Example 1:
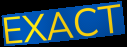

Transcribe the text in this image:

EXACT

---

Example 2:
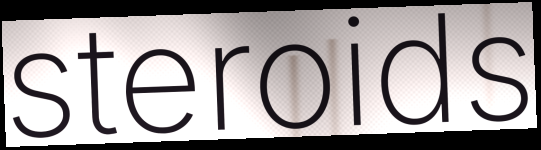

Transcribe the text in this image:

steroids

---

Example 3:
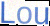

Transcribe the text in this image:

Lou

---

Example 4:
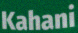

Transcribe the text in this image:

Kahani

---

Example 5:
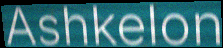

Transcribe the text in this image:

Ashkelon